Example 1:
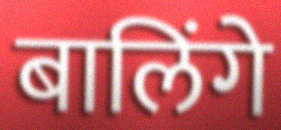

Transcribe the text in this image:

बालिंगे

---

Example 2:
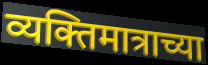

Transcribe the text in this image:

व्यक्तिमात्राच्या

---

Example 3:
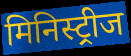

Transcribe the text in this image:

मिनिस्ट्रीज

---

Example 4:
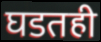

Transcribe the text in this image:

घडतही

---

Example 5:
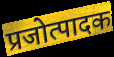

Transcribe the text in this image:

प्रजोत्पादक